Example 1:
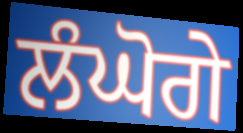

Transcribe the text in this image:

ਲੰਘੋਗੇ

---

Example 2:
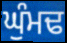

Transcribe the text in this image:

ਘੁੰਮਢ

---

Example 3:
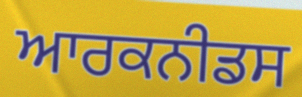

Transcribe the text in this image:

ਆਰਕਨੀਡਸ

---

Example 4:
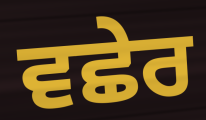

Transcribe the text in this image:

ਵਛੇਰ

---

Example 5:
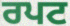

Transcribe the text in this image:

ਰਪਟ